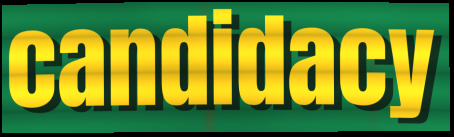
candidacy